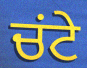
ਚਂਟੇ